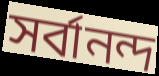
সৰ্বানন্দ